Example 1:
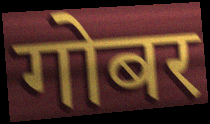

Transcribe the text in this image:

गोबर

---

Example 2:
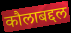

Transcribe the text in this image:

कौलाबद्दल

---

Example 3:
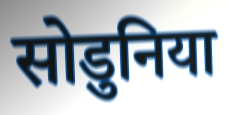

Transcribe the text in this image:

सोडुनिया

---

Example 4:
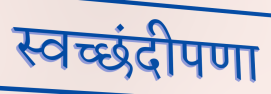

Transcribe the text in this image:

स्वच्छंदीपणा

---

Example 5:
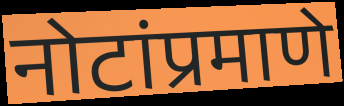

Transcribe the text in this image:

नोटांप्रमाणे